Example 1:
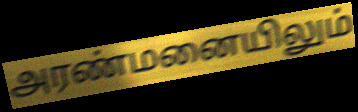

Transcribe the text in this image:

அரண்மனையிலும்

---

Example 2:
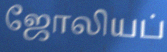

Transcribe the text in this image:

ஜோலியப்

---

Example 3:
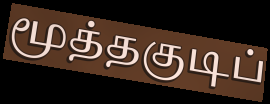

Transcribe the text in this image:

மூத்தகுடிப்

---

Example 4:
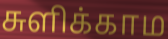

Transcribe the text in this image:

சுளிக்காம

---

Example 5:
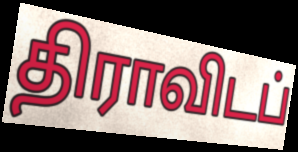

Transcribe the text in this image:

திராவிடப்